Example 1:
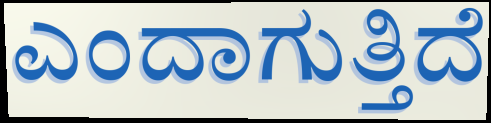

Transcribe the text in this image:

ಎಂದಾಗುತ್ತಿದೆ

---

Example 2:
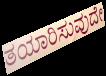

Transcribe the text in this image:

ತಯಾರಿಸುವುದೇ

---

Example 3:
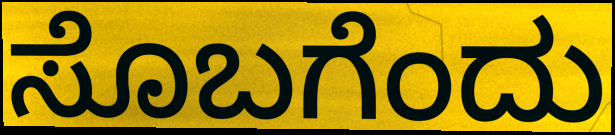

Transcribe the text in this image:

ಸೊಬಗೆಂದು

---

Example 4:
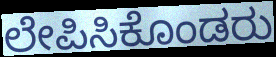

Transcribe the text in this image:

ಲೇಪಿಸಿಕೊಂಡರು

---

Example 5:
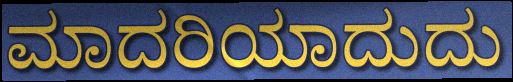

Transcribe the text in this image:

ಮಾದರಿಯಾದುದು